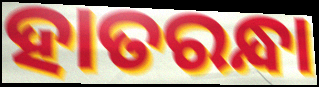
ହାତରନ୍ଧା